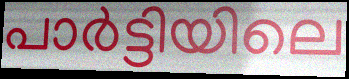
പാർട്ടിയിലെ